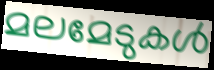
മലമേടുകൾ